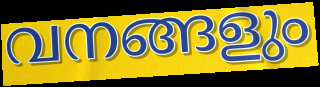
വനങ്ങളും